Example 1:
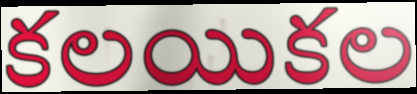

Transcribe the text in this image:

కలయికల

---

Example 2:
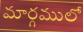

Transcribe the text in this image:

మార్గములో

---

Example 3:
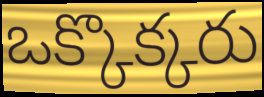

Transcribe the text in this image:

ఒక్కొక్కరు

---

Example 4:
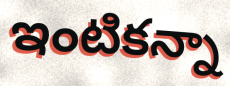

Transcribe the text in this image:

ఇంటికన్నా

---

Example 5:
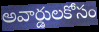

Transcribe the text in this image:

అవార్డులకోసం